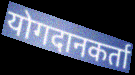
योगदानकर्ता